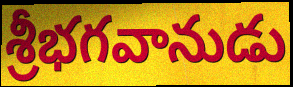
శ్రీభగవానుడు